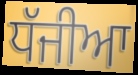
ਧੱਜੀਆ